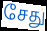
சேது